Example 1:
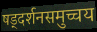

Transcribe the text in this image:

षड्दर्शनसमुच्चय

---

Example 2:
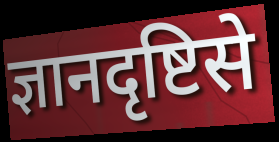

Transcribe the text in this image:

ज्ञानदृष्टिसे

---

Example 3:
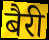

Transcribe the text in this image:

बैरी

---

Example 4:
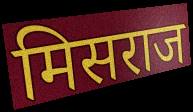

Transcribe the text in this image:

मिसराज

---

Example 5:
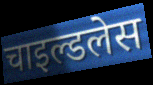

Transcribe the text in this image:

चाइल्डलेस